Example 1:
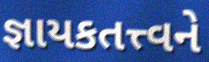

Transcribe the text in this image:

જ્ઞાયકતત્ત્વને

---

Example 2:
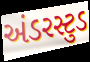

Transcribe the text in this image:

અંડરસ્ટુડ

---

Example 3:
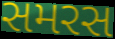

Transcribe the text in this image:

સમરસ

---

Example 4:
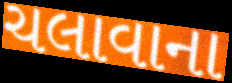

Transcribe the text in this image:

ચલાવાના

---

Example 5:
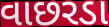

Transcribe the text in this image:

વાછરડા